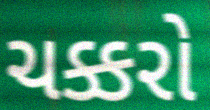
ચક્કરો